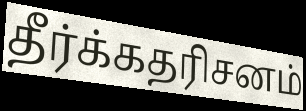
தீர்க்கதரிசனம்